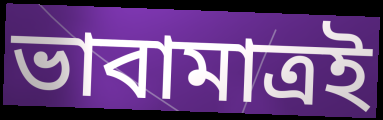
ভাবামাত্রই